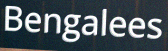
Bengalees